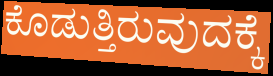
ಕೊಡುತ್ತಿರುವುದಕ್ಕೆ